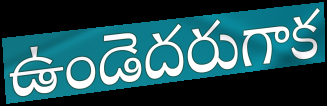
ఉండెదరుగాక